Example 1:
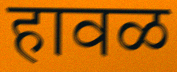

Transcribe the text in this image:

हावळ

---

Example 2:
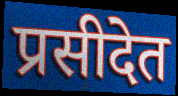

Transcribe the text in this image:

प्रसीदेत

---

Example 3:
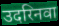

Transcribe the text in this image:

उदरिनवा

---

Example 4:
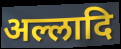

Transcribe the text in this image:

अल्लादि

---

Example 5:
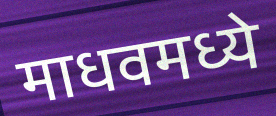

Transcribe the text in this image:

माधवमध्ये